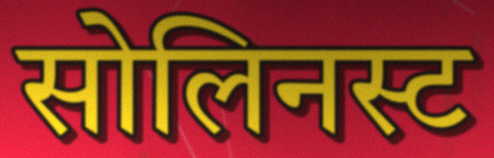
सोलिनस्ट